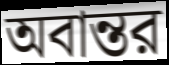
অবান্তর